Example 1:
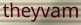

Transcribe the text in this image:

theyvam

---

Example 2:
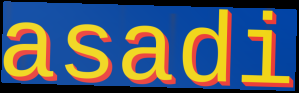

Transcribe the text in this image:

asadi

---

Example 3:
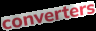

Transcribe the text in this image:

converters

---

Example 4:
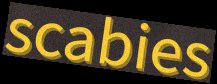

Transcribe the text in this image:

scabies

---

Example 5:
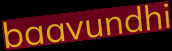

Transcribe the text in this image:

baavundhi